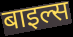
बाइल्स